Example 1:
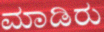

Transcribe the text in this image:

ಮಾಡಿರು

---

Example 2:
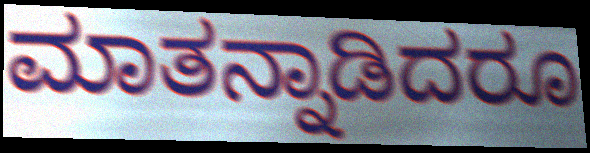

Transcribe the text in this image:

ಮಾತನ್ನಾಡಿದರೂ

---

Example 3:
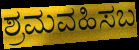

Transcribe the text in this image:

ಶ್ರಮವಹಿಸಬ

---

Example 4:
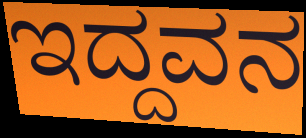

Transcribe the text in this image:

ಇದ್ದವನ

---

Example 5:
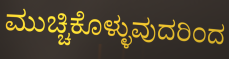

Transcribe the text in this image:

ಮುಚ್ಚಿಕೊಳ್ಳುವುದರಿಂದ